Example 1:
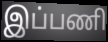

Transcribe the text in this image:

இப்பணி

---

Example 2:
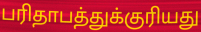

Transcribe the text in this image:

பரிதாபத்துக்குரியது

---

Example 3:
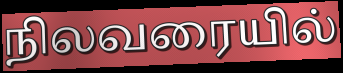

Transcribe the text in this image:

நிலவரையில்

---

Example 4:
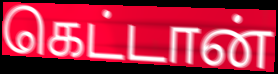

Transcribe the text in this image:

கெட்டான்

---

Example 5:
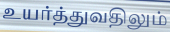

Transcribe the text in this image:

உயர்த்துவதிலும்